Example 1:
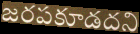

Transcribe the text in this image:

జరపకూడదని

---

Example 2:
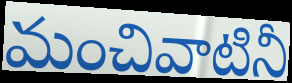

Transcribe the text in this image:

మంచివాటినీ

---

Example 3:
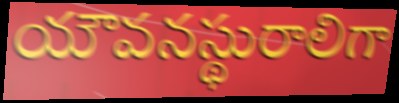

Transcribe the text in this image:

యౌవనస్థురాలిగా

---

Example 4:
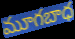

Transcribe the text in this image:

మూగబాధ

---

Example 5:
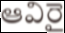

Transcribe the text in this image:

ఆవిరై